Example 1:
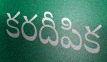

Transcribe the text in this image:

కరదీపిక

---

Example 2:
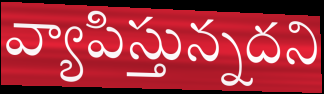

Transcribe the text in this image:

వ్యాపిస్తున్నదని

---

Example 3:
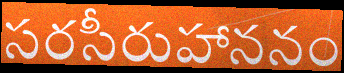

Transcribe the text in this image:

సరసీరుహాననం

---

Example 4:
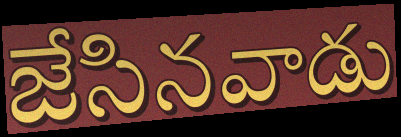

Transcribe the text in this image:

జేసినవాడు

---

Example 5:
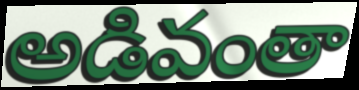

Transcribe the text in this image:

అడివంతా